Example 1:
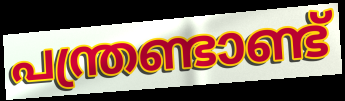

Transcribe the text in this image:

പന്ത്രണ്ടാണ്ട്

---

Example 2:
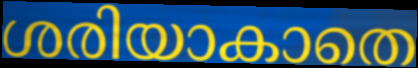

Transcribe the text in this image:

ശരിയാകാതെ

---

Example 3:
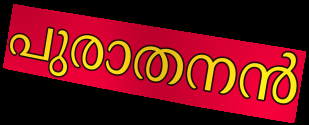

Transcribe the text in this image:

പുരാതനൻ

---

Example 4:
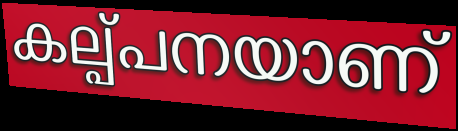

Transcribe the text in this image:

കല്പ്പനയാണ്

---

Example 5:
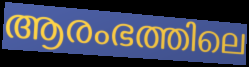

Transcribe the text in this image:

ആരംഭത്തിലെ